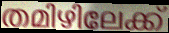
തമിഴിലേക്ക്